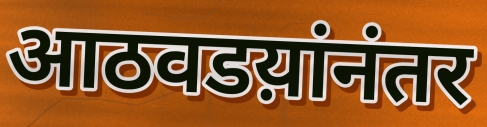
आठवडय़ांनंतर